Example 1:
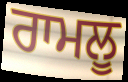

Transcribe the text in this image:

ਰਾਮਲੂ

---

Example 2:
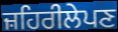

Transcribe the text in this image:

ਜ਼ਹਿਰੀਲੇਪਣ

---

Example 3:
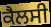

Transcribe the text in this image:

ਕੈਲਸੀ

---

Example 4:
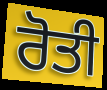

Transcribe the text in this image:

ਰੋਤੀ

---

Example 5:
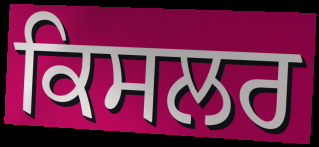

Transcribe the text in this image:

ਕਿਸਲਰ